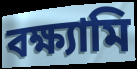
বক্ষ্যামি